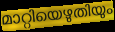
മാറ്റിയെഴുതിയും